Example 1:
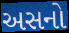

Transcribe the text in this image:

અસનો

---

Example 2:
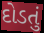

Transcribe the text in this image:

દોડતું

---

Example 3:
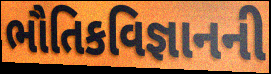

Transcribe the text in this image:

ભૌતિકવિજ્ઞાનની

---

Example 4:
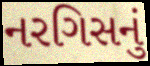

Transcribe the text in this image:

નરગિસનું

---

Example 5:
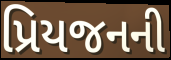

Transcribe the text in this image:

પ્રિયજનની